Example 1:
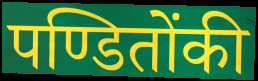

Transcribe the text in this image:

पण्डितोंकी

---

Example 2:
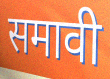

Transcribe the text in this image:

समावी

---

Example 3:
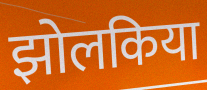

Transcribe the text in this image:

झोलकिया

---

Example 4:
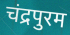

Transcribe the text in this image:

चंद्रपुरम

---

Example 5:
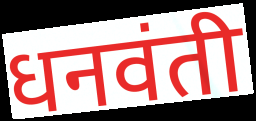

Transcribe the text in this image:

धनवंती